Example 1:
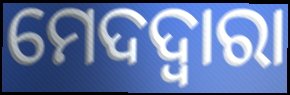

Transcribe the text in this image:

ମେଦଦ୍ଵାରା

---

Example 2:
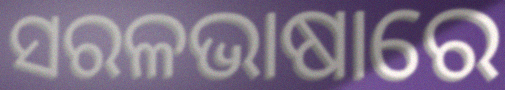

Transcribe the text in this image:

ସରଳଭାଷାରେ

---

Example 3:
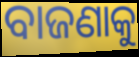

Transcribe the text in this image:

ବାଜଣାକୁ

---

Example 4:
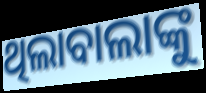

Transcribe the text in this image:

ଥିଲାବାଲାଙ୍କୁ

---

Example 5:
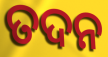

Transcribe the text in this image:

ତଦନ